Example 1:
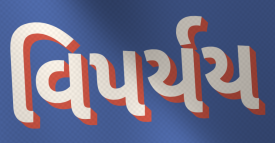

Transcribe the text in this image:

વિપર્યય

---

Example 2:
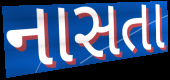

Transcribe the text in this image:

નાસતા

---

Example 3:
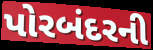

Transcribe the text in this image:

પોરબંદરની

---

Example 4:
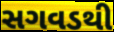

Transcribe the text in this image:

સગવડથી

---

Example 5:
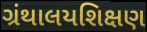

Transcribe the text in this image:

ગ્રંથાલયશિક્ષણ